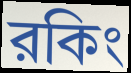
রকিং